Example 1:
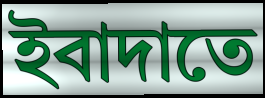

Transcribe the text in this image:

ইবাদাতে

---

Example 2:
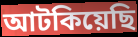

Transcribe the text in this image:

আটকিয়েছি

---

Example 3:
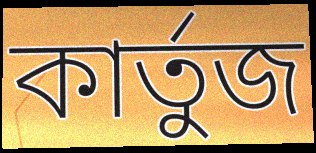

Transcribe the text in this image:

কার্তুজ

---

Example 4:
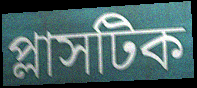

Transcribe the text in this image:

প্লাসটিক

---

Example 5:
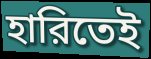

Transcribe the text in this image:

হারিতেই